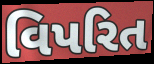
વિપરિત